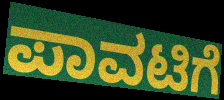
ಪಾವಟಿಗೆ